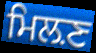
ਮਿਲ਼ਣ